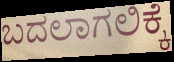
ಬದಲಾಗಲಿಕ್ಕೆ